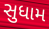
સુધામ